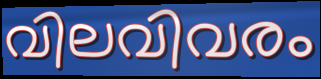
വിലവിവരം